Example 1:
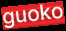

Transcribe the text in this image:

guoko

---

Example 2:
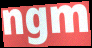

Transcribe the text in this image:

ngm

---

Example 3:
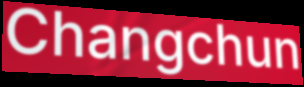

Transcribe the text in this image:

Changchun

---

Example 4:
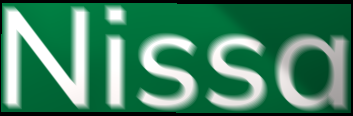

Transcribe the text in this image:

Nissa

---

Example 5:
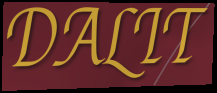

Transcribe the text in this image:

DALIT